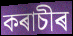
কৰাচীৰ